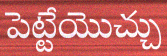
పెట్టేయొచ్చు